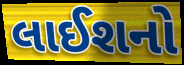
લાઈશનો